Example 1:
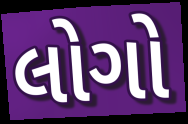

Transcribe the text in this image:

લોગો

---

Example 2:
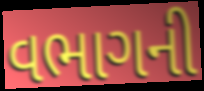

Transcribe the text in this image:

વભાગની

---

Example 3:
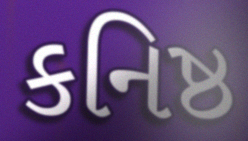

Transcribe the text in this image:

કનિષ્ઠ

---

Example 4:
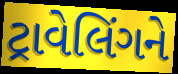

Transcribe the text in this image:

ટ્રાવેલિંગને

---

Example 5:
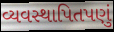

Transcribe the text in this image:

વ્યવસ્થાપિતપણું